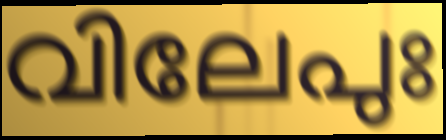
വിലേപുഃ